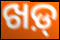
ଖଡ଼୍